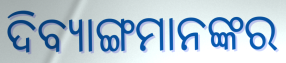
ଦିବ୍ୟାଙ୍ଗମାନଙ୍କର